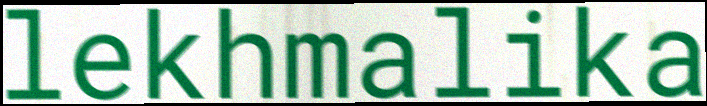
lekhmalika